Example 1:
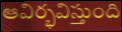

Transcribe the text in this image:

ఆవిర్భవిస్తుంది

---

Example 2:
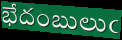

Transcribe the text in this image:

భేదంబులుఁ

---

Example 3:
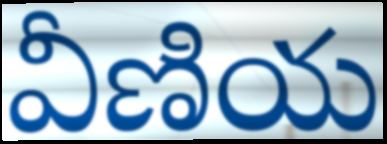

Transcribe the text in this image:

వీణియ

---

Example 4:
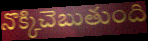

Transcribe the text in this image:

నొక్కిచెబుతుంది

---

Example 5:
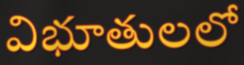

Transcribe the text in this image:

విభూతులలో